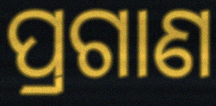
ପ୍ରଗାଣ